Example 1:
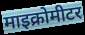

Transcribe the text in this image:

माइक्रोमीटर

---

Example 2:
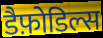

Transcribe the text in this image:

डैफ़ोडिल्स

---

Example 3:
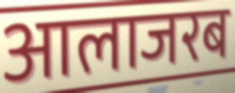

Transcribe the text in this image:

आलाजरब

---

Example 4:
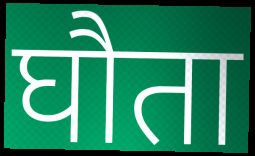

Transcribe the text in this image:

घौता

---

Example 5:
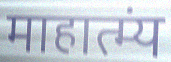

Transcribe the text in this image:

माहात्म्यं